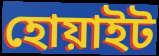
হোয়াইট